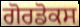
ਗੋਰਡੋਕਸ